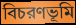
বিচরণভূমি